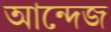
আন্দেজ